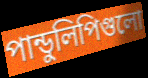
পান্ডুলিপিগুলো